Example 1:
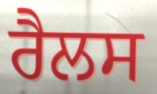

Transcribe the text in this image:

ਰੈਲਸ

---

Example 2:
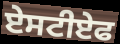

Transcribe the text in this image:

ਏਸਟੀਏਫ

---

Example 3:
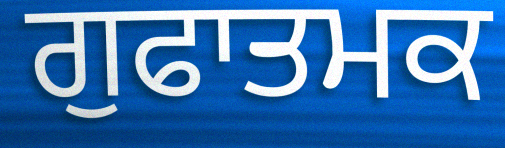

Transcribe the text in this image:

ਗੁਫਾਤਮਕ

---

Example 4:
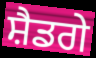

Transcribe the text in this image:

ਸ਼ੈਡਗੇ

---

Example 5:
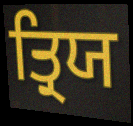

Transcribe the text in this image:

ਤ੍ਰਿਯ